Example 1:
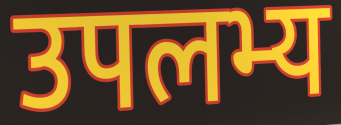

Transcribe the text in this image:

उपलभ्य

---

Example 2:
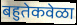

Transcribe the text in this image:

बहुतेकवेळा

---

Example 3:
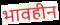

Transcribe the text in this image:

भावहीन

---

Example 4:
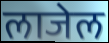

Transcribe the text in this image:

लाजेल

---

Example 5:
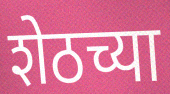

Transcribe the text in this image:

शेठच्या